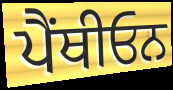
ਪੈਂਥੀਓਨ